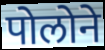
पोलोने